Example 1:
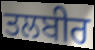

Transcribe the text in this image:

ਤਲਬੀਰ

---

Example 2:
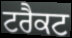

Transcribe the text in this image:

ਟਰੈਕਟ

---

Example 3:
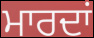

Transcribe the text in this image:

ਮਾਰਦਾਂ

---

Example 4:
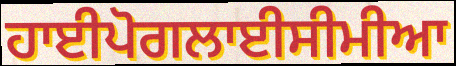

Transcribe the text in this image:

ਹਾਈਪੋਗਲਾਈਸੀਮੀਆ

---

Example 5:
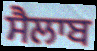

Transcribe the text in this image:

ਸੈਲਾਬ